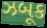
ઝબૂક